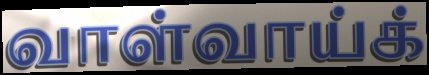
வாள்வாய்க்